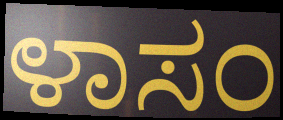
ಳಾಸಂ